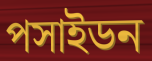
পসাইডন